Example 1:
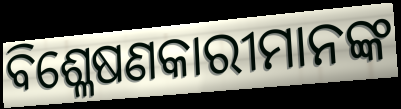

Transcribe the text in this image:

ବିଶ୍ଳେଷଣକାରୀମାନଙ୍କ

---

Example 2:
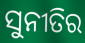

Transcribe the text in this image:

ସୁନୀତିର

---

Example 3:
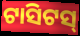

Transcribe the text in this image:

ଟାସିଟସ୍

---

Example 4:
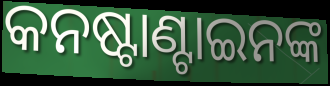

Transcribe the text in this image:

କନଷ୍ଟାଣ୍ଟାଇନଙ୍କ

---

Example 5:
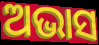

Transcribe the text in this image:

ଅଭାସ